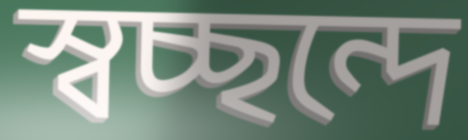
স্বচ্ছন্দে